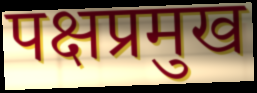
पक्षप्रमुख